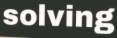
solving